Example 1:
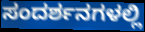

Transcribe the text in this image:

ಸಂದರ್ಶನಗಳಲ್ಲಿ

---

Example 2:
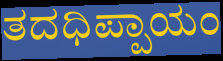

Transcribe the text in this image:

ತದಧಿಪ್ಪಾಯಂ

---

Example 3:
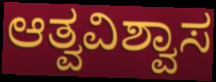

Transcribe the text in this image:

ಆತ್ವವಿಶ್ವಾಸ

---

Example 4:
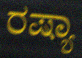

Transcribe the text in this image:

ರಷ್ಯಾ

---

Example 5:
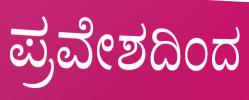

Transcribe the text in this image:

ಪ್ರವೇಶದಿಂದ